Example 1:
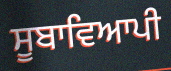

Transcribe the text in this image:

ਸੂਬਾਵਿਆਪੀ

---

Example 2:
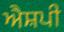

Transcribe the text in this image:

ਐਸ਼ਪੀ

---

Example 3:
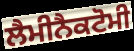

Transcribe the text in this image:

ਲੈਮੀਨੈਕਟੋਮੀ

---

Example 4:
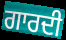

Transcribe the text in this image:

ਗਾਰਦੀ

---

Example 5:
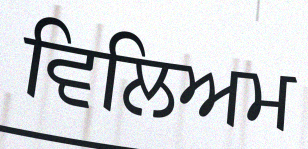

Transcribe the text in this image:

ਵਿਲਿਅਮ